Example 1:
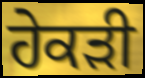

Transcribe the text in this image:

ਹੇਕੜੀ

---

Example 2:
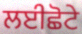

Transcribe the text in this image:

ਲਈਛੋਟੇ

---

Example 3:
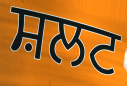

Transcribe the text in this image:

ਸ਼ਲਟ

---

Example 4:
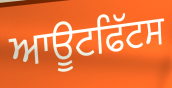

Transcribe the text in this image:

ਆਊਟਫਿੱਟਸ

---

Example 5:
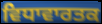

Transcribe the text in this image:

ਵਿਧਾਵਾਰਤਕ